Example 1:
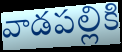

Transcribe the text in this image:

వాడపల్లికి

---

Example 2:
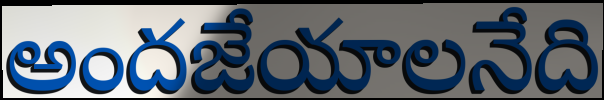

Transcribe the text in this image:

అందజేయాలనేది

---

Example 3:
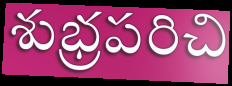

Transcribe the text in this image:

శుభ్రపరిచి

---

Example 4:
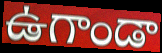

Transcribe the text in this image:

ఉగాండా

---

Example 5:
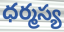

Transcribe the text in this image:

ధర్మస్య